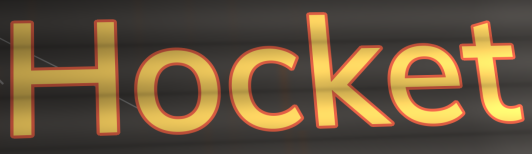
Hocket